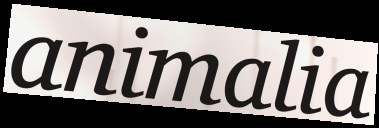
animalia